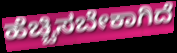
ಹೆಚ್ಚಿಸಬೇಕಾಗಿದೆ